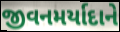
જીવનમર્યાદાને